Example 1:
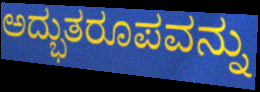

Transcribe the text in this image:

ಅದ್ಭುತರೂಪವನ್ನು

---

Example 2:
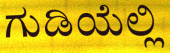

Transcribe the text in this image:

ಗುಡಿಯೆಲ್ಲಿ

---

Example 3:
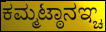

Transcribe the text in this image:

ಕಮ್ಮಟ್ಠಾನಞ್ಚ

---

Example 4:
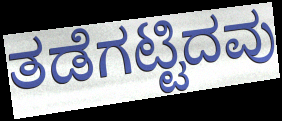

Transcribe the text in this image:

ತಡೆಗಟ್ಟಿದವು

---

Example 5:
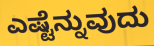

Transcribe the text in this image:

ಎಷ್ಟೆನ್ನುವುದು